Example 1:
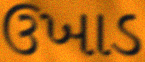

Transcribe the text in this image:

ઉખાડ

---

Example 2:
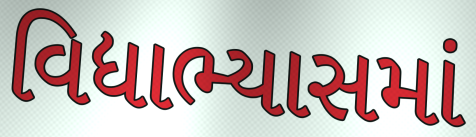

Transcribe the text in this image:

વિદ્યાભ્યાસમાં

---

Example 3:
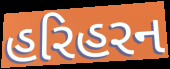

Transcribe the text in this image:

હરિહરન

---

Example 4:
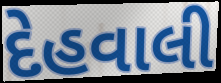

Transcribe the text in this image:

દેહવાલી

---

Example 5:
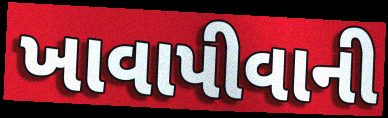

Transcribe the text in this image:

ખાવાપીવાની